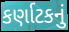
કર્ણાટકનું